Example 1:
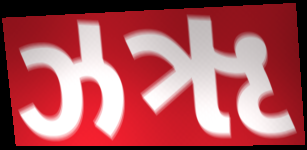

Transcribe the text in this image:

ઝૠ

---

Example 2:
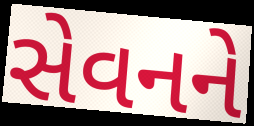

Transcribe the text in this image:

સેવનને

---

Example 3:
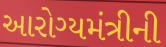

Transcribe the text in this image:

આરોગ્યમંત્રીની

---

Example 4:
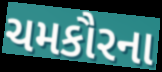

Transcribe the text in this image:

ચમકૌરના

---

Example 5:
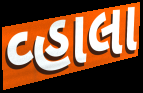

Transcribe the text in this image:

વ્હાલા